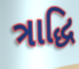
ત્રાદ્ધિ